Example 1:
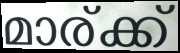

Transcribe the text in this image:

മാര്ക്ക്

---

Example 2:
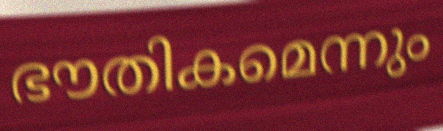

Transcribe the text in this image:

ഭൗതികമെന്നും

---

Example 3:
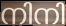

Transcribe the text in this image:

നിനി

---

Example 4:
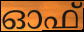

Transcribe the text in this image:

ഓഫ്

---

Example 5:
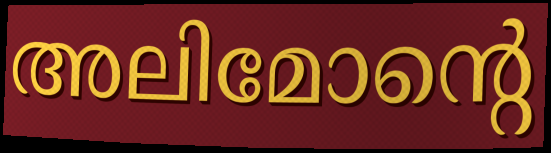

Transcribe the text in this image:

അലിമോന്റെ